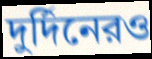
দুর্দিনেরও